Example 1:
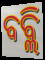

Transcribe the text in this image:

ବବ୍ଲି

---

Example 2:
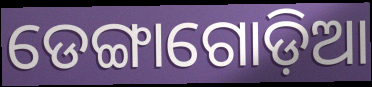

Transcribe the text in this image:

ଡେଙ୍ଗାଗୋଡ଼ିଆ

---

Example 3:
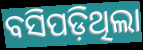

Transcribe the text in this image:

ବସିପଡ଼ିଥିଲା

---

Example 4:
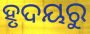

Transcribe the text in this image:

ହୃଦୟରୁ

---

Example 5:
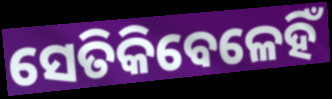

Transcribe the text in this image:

ସେତିକିବେଳେହିଁ